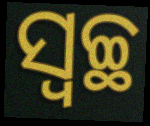
ସ୍ବଚ୍ଛ